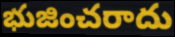
భుజించరాదు